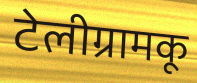
टेलीग्रामकू